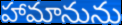
హామానును